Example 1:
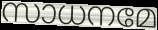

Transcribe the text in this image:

സാധനമേ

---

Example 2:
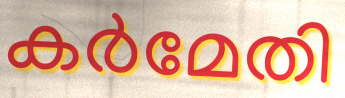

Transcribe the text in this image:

കർമേതി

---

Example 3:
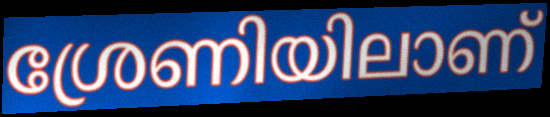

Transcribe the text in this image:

ശ്രേണിയിലാണ്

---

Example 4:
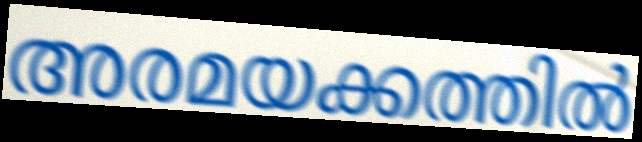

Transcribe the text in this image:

അരമയക്കത്തിൽ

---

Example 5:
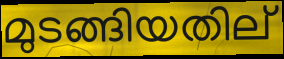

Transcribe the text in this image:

മുടങ്ങിയതില്